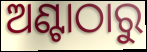
ଅଣ୍ଟାଠାରୁ